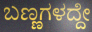
ಬಣ್ಣಗಳದ್ದೇ